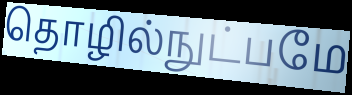
தொழில்நுட்பமே